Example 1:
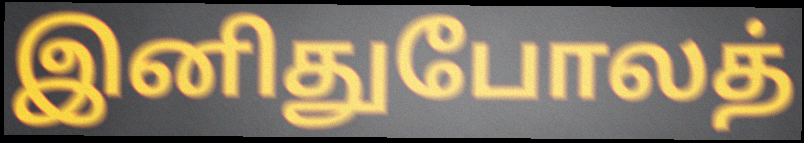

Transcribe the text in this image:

இனிதுபோலத்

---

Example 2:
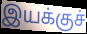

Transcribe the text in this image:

இயக்குச்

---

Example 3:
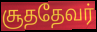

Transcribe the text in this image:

சூததேவர்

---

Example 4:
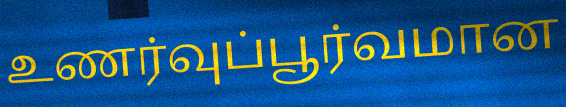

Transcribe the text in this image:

உணர்வுப்பூர்வமான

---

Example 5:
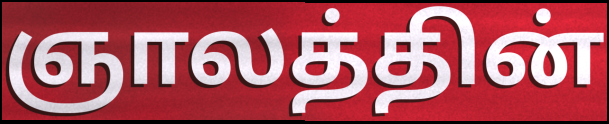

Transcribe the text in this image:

ஞாலத்தின்